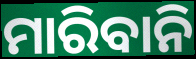
ମାରିବାନି